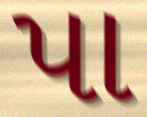
પા